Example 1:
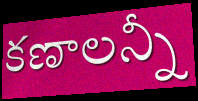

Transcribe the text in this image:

కణాలన్నీ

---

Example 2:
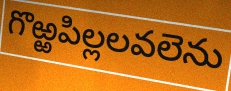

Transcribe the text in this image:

గొఱ్ఱపిల్లలవలెను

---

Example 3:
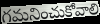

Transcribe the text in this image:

గమనించుకోవాలి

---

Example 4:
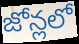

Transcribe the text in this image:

జోన్లలో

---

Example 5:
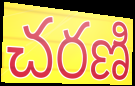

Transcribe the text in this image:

చరణి